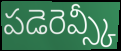
పడెరెవ్స్కీ